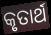
କୃତାର୍ଥ